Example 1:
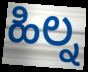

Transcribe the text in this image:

ಹಿಲ್ನ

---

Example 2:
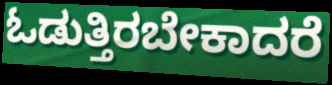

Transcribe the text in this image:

ಓಡುತ್ತಿರಬೇಕಾದರೆ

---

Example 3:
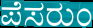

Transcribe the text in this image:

ಪೆಸರುಂ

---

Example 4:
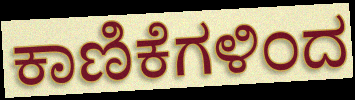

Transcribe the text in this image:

ಕಾಣಿಕೆಗಳಿಂದ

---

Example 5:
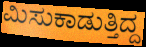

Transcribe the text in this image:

ಮಿಸುಕಾಡುತ್ತಿದ್ದ